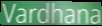
Vardhana